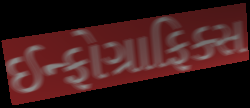
ઈન્ફોગ્રાફિક્સ